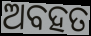
ଅବହତ